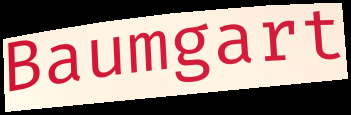
Baumgart